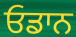
ਓਡਾਨ